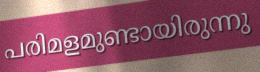
പരിമളമുണ്ടായിരുന്നു